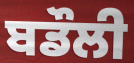
ਬਡੌਲੀ